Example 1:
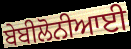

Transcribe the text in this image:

ਬੇਬੀਲੋਨੀਆਈ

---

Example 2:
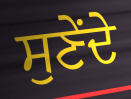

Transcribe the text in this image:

ਸੁਣੇਂਦੇ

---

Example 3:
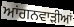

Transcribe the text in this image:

ਆਂਗਨਵਾੜੀਆਂ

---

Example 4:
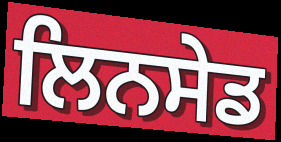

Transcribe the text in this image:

ਲਿਨਸੇਡ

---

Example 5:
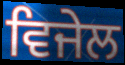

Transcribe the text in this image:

ਵਿਜੇਲ